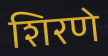
शिरणे